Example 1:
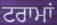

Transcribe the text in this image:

ਟਰਾਮਾਂ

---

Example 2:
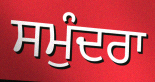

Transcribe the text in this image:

ਸਮੁੰਦਰਾ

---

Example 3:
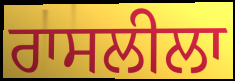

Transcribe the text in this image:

ਰਾਸਲੀਲਾ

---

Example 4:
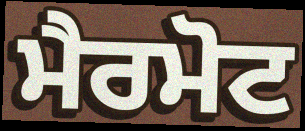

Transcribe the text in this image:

ਮੈਰਮੋਟ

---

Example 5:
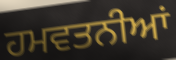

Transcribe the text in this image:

ਹਮਵਤਨੀਆਂ